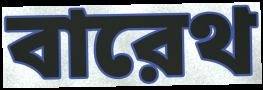
বারেথ